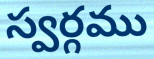
స్వర్గము